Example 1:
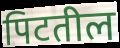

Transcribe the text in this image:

पिटतील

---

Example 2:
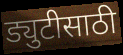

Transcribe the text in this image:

ड्युटीसाठी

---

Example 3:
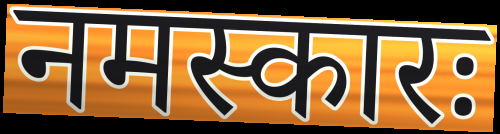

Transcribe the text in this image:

नमस्कारः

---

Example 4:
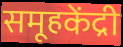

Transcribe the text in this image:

समूहकेंद्री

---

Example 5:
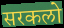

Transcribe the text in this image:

सरकलो